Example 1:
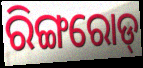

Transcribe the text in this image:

ରିଙ୍ଗରୋଡ୍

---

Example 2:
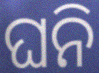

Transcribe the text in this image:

ଘନି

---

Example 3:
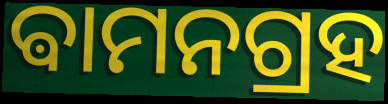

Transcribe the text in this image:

ଵାମନଗ୍ରହ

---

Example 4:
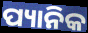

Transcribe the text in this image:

ପ୍ୟାନିକ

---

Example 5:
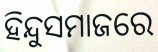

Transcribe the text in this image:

ହିନ୍ଦୁସମାଜରେ